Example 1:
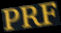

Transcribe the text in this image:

PRF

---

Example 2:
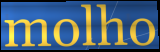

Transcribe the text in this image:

molho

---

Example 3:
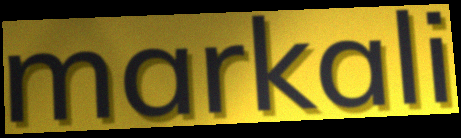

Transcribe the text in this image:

markali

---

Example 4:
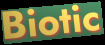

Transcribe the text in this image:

Biotic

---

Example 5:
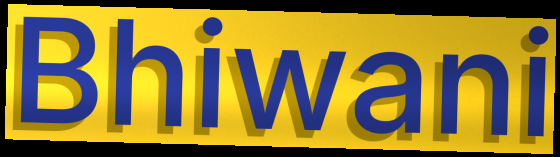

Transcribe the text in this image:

Bhiwani